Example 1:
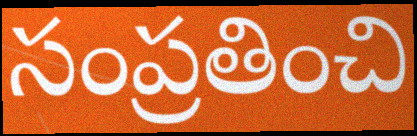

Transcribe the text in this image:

సంప్రతించి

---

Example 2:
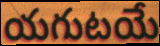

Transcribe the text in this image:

యగుటయే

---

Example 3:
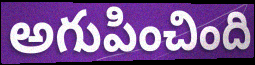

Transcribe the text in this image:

అగుపించింది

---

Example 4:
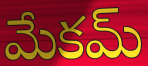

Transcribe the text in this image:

మేకమ్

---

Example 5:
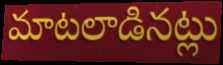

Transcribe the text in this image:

మాటలాడినట్లు